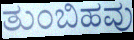
ತುಂಬಿಹವು